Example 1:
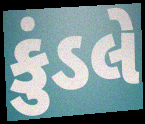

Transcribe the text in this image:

કુંડલે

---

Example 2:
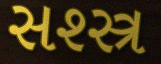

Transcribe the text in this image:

સશ્સ્ત્ર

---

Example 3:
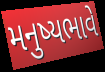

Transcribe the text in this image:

મનુષ્યભાવે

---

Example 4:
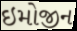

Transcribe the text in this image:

ઇમોજીન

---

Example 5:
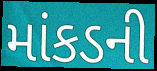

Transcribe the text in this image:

માંકડની